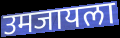
उमजायला